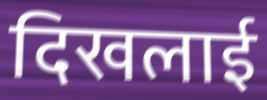
दिखलाई